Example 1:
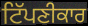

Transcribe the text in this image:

ਟਿੱਪਣੀਕਾਰ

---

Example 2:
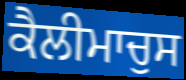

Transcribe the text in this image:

ਕੈਲੀਮਾਚੁਸ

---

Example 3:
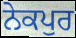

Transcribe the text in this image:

ਨੇਕਪੁਰ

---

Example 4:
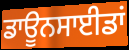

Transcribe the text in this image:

ਡਾਊਨਸਾਈਡਾਂ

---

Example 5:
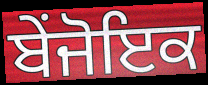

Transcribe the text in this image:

ਬੇਂਜੋਇਕ